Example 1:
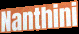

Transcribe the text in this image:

Nanthini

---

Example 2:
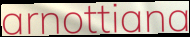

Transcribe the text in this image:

arnottiana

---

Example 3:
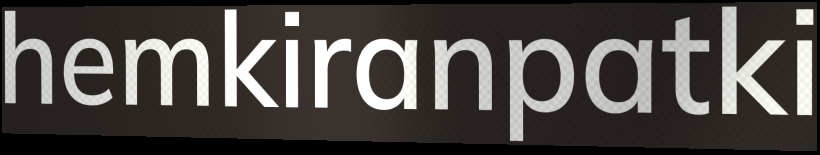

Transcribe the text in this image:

hemkiranpatki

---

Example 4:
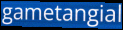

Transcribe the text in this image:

gametangial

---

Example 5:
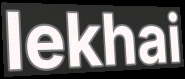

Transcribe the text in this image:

lekhai